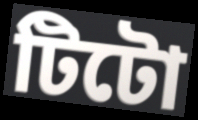
টিটো